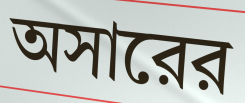
অসারের